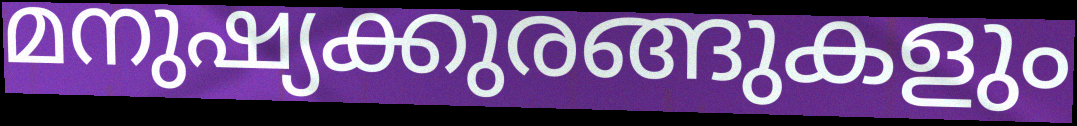
മനുഷ്യക്കുരങ്ങുകളും